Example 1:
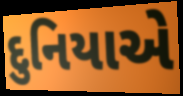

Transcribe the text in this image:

દુનિયાએ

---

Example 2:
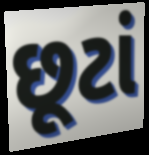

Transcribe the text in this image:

છૂટાં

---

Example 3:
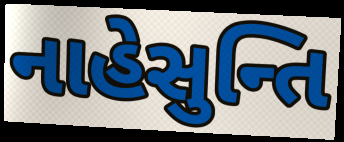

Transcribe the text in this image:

નાહેસુન્તિ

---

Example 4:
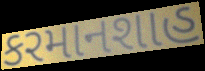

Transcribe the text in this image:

કરમાનશાહ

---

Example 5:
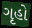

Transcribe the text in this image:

ગૃહો